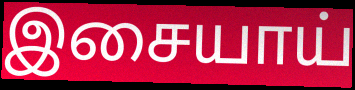
இசையாய்